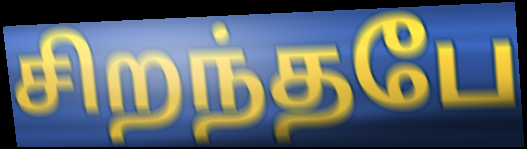
சிறந்தபே